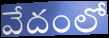
వేదంలో